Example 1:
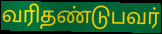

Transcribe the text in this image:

வரிதண்டுபவர்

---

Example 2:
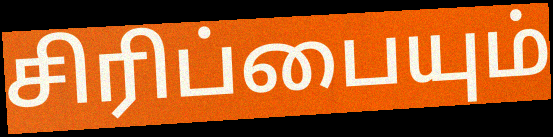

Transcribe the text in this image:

சிரிப்பையும்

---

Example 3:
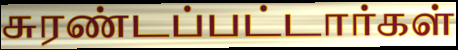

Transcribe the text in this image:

சுரண்டப்பட்டார்கள்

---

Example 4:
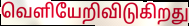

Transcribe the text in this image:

வெளியேறிவிடுகிறது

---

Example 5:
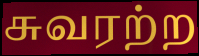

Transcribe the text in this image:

சுவரற்ற